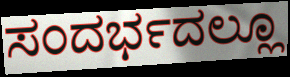
ಸಂದರ್ಭದಲ್ಲೂ